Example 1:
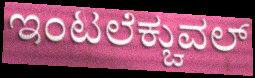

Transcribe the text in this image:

ಇಂಟಲೆಕ್ಚುವಲ್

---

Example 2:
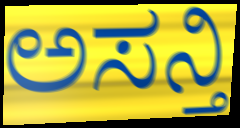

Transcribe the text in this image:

ಅಸನ್ತಿ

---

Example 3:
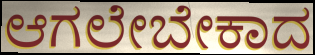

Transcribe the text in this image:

ಆಗಲೇಬೇಕಾದ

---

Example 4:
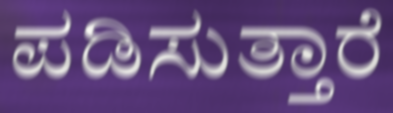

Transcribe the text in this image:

ಪಡಿಸುತ್ತಾರೆ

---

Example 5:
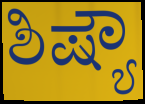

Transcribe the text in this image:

ಶಿಷ್ಯೌ